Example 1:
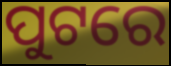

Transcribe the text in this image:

ପୁଟରେ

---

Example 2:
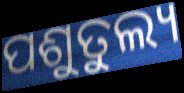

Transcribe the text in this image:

ପଶୁତୁଲ୍ୟ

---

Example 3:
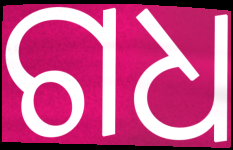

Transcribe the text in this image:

ଗଧ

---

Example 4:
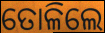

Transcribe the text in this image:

ତୋଳିଲେ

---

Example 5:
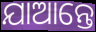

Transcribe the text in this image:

ଯାଆନ୍ତେ